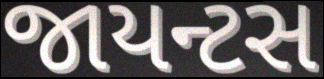
જાયન્ટસ